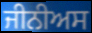
ਜੀਨੀਅਸ